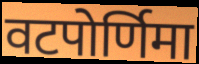
वटपोर्णिमा